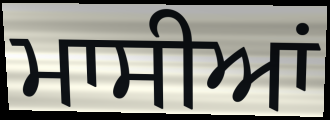
ਮਾਸੀਆਂ